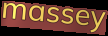
massey